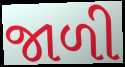
જાળી